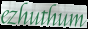
ezhuthum